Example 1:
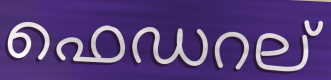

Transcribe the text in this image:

ഫെഡറല്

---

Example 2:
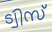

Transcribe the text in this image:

ട്വിസ്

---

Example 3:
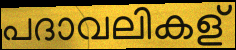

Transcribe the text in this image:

പദാവലികള്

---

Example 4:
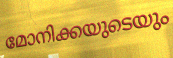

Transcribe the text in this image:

മോനിക്കയുടെയും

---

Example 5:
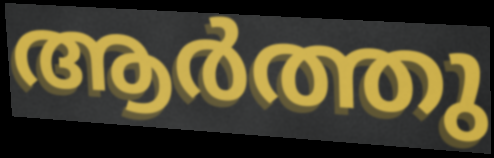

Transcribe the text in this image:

ആർത്തു